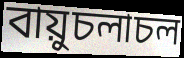
বায়ুচলাচল